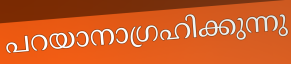
പറയാനാഗ്രഹിക്കുന്നു